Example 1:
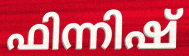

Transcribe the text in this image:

ഫിന്നിഷ്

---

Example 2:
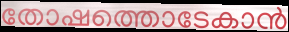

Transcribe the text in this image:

തോഷത്തൊടേകാൻ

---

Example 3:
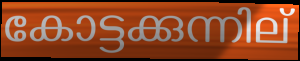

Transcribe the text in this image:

കോട്ടക്കുന്നില്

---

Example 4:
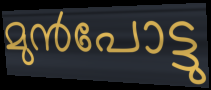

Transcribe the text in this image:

മുൻപോട്ടു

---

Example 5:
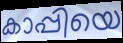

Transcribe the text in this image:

കാപ്പിയെ